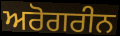
ਅਰੋਗਰੀਨ